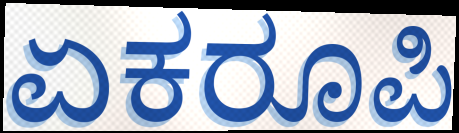
ಏಕರೂಪಿ